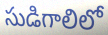
సుడిగాలిలో